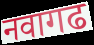
नवागढ